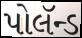
પોલૅન્ડ